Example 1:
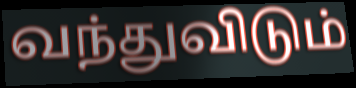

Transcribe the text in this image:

வந்துவிடும்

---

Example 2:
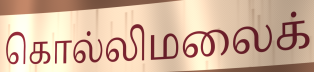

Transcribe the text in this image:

கொல்லிமலைக்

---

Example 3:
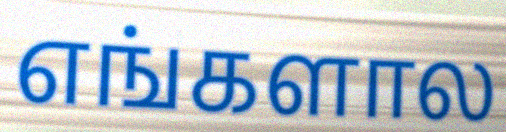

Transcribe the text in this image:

எங்களால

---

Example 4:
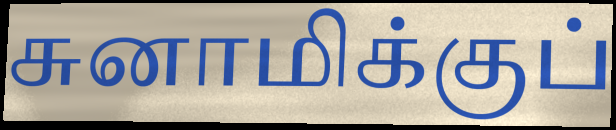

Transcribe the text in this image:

சுனாமிக்குப்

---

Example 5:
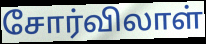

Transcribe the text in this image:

சோர்விலாள்